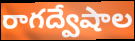
రాగద్వేషాల